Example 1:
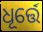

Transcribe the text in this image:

ଧୂର୍ତ୍ତେ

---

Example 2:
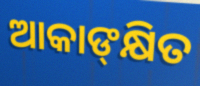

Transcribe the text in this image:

ଆକାଙ୍‍କ୍ଷିତ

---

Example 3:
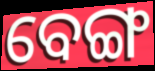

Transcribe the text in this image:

ବେଙ୍ଗ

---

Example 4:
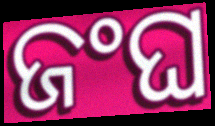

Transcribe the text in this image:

ଜଂଘ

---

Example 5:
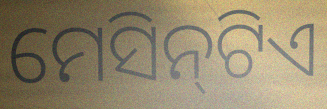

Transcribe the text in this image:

ମେସିନ୍‌ଟିଏ